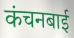
कंचनबाई